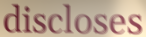
discloses